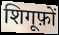
शिगूफ़ों